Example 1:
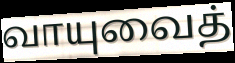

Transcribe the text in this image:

வாயுவைத்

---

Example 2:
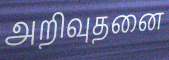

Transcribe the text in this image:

அறிவுதனை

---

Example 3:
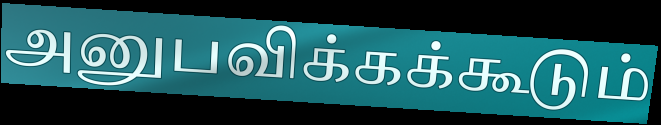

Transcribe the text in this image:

அனுபவிக்கக்கூடும்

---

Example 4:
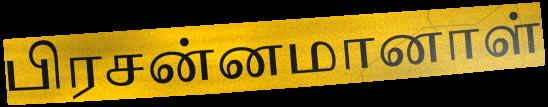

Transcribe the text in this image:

பிரசன்னமானாள்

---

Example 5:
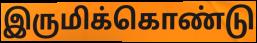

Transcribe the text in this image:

இருமிக்கொண்டு